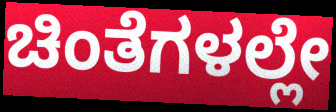
ಚಿಂತೆಗಳಲ್ಲೇ